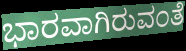
ಭಾರವಾಗಿರುವಂತೆ